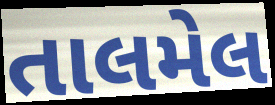
તાલમેલ